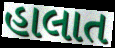
હાલાત